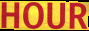
HOUR